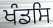
ਖੰਡਸਿ